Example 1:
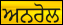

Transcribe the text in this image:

ਅਨਰੋਲ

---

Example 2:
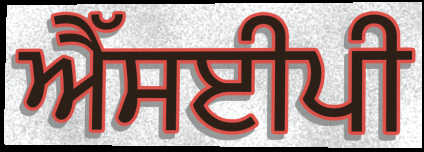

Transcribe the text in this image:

ਐੱਸਈਪੀ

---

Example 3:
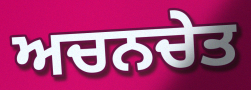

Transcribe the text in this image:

ਅਚਨਚੇਤ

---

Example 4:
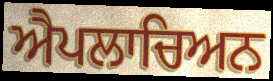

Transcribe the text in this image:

ਐਪਲਾਚਿਅਨ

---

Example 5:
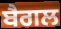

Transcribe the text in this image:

ਬੈਗਲ